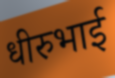
धीरुभाई